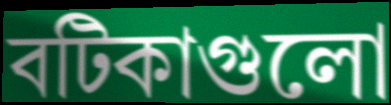
বটিকাগুলো